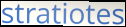
stratiotes